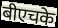
बीएचके